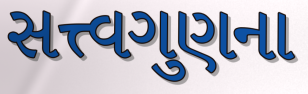
સત્ત્વગુણના